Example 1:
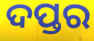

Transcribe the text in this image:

ଦପ୍ତର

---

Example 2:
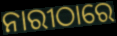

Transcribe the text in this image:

ନାରୀଠାରେ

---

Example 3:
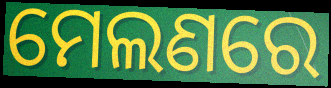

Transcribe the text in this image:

ମେଲଣରେ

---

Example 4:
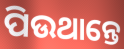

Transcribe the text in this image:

ପିଉଥାନ୍ତେ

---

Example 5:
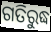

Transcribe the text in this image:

ଗତିରୁଦ୍ଧ